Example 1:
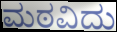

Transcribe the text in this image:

ಮಠವಿದು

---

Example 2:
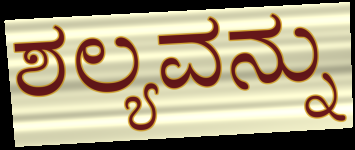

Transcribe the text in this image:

ಶಲ್ಯವನ್ನು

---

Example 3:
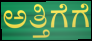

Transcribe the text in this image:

ಅತ್ತಿಗೆಗೆ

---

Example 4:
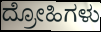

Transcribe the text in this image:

ದ್ರೋಹಿಗಳು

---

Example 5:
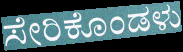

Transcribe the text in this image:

ಸೇರಿಕೊಂಡಳು